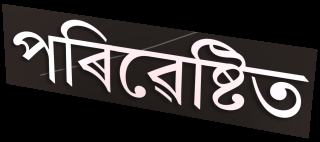
পৰিৱেষ্টিত